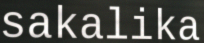
sakalika